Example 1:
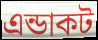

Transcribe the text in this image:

এন্ডাকট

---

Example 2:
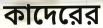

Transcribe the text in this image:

কাদেরের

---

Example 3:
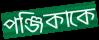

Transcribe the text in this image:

পঞ্জিকাকে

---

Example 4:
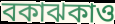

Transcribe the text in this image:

বকাঝকাও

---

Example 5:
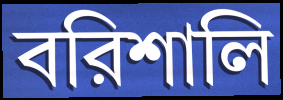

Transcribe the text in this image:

বরিশালি